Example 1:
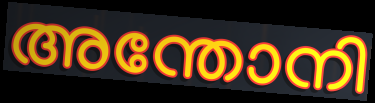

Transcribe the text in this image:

അന്തോനി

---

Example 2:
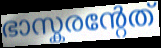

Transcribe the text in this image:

ഭാസ്കരന്റേത്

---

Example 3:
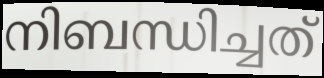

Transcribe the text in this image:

നിബന്ധിച്ചത്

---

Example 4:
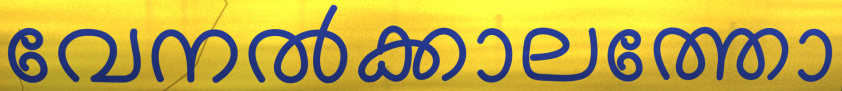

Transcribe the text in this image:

വേനൽക്കാലത്തോ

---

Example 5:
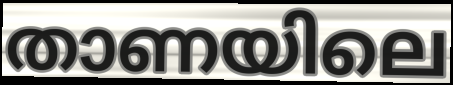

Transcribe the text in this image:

താണയിലെ